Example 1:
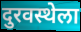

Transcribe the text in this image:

दुरवस्थेला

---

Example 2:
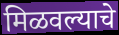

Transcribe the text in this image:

मिळवल्याचे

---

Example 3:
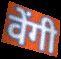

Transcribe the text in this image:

वेंगी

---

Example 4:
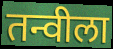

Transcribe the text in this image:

तन्वीला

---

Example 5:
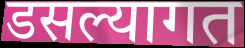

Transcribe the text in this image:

डसल्यागत